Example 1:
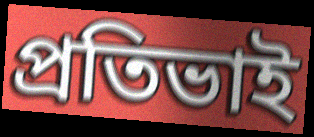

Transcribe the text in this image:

প্ৰতিভাই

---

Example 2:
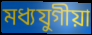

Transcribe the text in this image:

মধ্যযুগীয়া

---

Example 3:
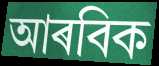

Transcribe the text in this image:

আৰবিক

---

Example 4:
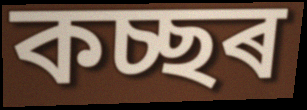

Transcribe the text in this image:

কচ্ছৰ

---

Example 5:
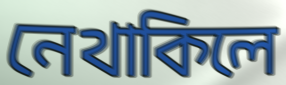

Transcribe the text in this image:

নেথাকিলে